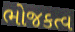
ભોજકત્વ